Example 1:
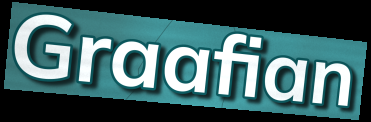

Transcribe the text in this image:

Graafian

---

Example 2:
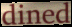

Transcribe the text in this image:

dined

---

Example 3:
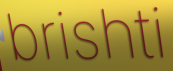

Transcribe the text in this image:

brishti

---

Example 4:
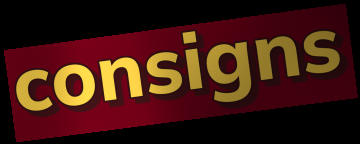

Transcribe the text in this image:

consigns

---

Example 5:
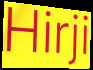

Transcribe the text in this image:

Hirji